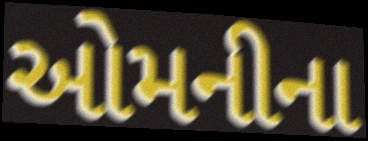
ઓમનીના